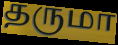
தருமா